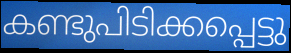
കണ്ടുപിടിക്കപ്പെട്ടു